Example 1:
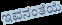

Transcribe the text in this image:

ಇವನಂತೆಯೆ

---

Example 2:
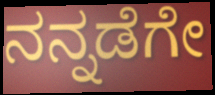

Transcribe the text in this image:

ನನ್ನಡೆಗೇ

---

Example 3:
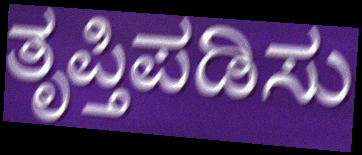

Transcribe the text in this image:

ತೃಪ್ತಿಪಡಿಸು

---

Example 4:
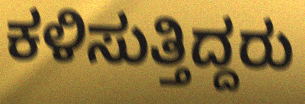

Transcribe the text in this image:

ಕಳಿಸುತ್ತಿದ್ದರು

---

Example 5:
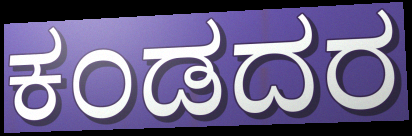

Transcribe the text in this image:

ಕಂಡದರ